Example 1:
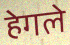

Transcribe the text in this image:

हेगले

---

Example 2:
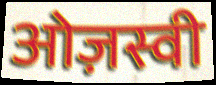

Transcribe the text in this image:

ओज़स्वी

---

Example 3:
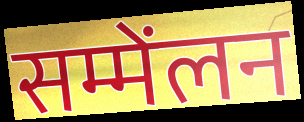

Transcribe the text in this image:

सम्मेंलन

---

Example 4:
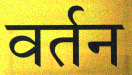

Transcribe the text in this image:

वर्तन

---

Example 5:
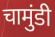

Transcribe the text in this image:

चामुंडी